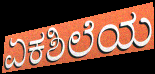
ಏಕಶಿಲೆಯ